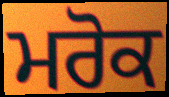
ਮਰੋਕ